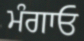
ਮੰਗਾਓ